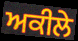
ਅਕੀਲੇ